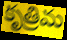
కృత్రిమ